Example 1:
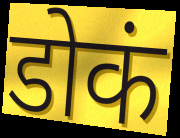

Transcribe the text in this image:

डोकं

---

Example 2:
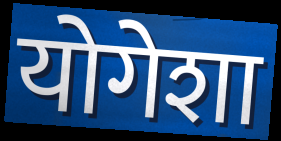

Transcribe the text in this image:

योगेशा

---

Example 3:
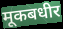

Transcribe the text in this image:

मूकबधीर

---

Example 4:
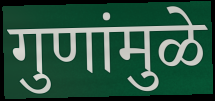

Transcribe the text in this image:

गुणांमुळे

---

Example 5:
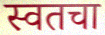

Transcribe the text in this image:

स्वतचा